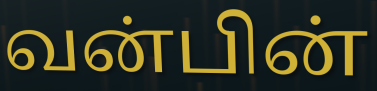
வன்பின்